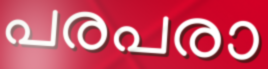
പരപരാ